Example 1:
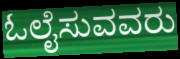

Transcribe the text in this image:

ಓಲೈಸುವವರು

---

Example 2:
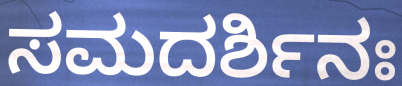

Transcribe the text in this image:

ಸಮದರ್ಶಿನಃ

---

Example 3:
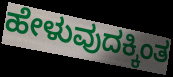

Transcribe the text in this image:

ಹೇಳುವುದಕ್ಕಿಂತ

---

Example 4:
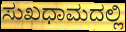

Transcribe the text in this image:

ಸುಖಧಾಮದಲ್ಲಿ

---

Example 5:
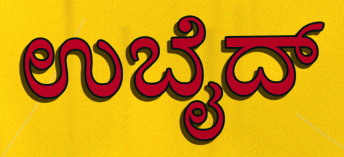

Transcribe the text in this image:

ಉಬೈದ್